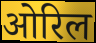
ओरिल